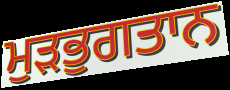
ਮੁੜਭੁਗਤਾਨ